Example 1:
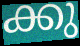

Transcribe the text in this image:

ക്കു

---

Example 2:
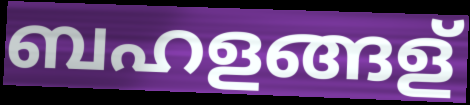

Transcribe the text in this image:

ബഹളങ്ങള്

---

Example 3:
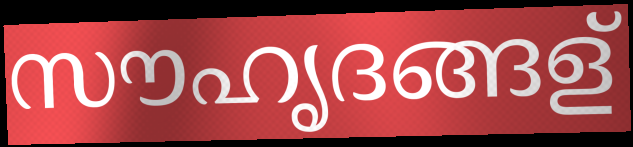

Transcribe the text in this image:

സൗഹൃദങ്ങള്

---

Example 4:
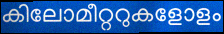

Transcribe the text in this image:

കിലോമീറ്ററുകളോളം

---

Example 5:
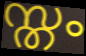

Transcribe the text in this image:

സ്തം